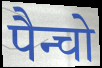
पैन्चो